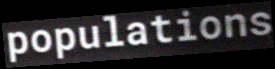
populations